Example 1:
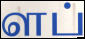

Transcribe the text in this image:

ளப்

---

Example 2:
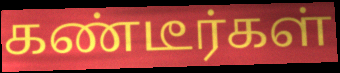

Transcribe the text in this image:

கண்டீர்கள்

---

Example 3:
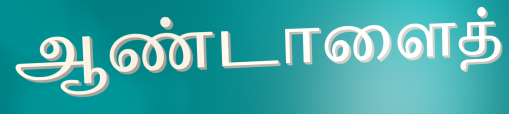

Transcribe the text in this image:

ஆண்டாளைத்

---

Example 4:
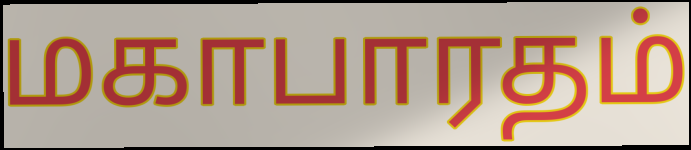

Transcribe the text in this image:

மகாபாரதம்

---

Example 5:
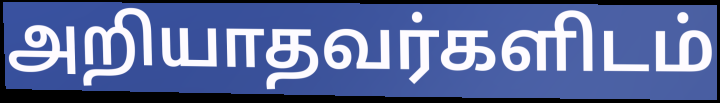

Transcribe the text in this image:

அறியாதவர்களிடம்